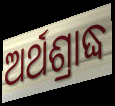
ଅର୍ଥଶ୍ରାଦ୍ଧ